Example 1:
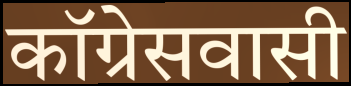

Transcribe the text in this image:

कॉग्रेसवासी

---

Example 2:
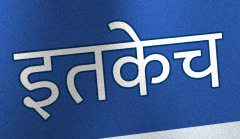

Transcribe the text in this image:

इतकेच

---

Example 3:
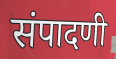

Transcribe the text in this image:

संपादणी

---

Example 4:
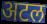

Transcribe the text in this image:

अटल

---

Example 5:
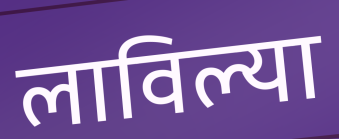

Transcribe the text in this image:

लाविल्या